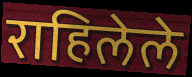
राहिलेले